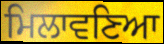
ਮਿਲਾਵਣਿਆ